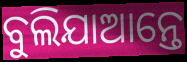
ବୁଲିଯାଆନ୍ତେ